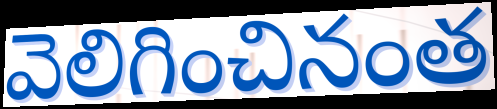
వెలిగించినంత